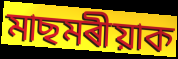
মাছমৰীয়াক